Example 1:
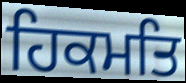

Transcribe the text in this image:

ਹਿਕਮਤਿ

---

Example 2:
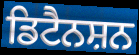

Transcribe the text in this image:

ਡਿਟੈਨਸ਼ਨ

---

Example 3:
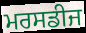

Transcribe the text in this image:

ਮਰਸਡੀਜ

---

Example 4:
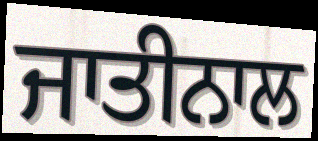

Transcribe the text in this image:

ਜਾਤੀਨਾਲ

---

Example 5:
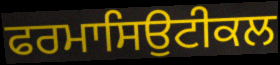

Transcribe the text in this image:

ਫਰਮਾਸਿਉਟੀਕਲ